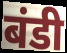
बंडी